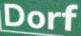
Dorf